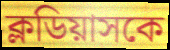
ক্লডিয়াসকে